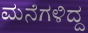
ಮನೆಗಳಿದ್ದ